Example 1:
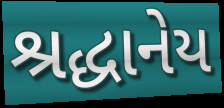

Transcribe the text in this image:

શ્રદ્ધાનેય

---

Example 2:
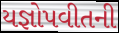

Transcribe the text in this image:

યજ્ઞોપવીતની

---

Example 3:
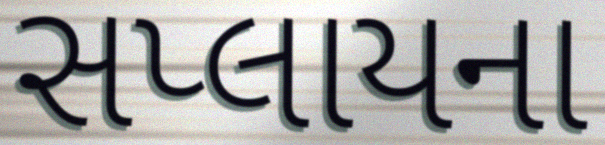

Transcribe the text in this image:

સપ્લાયના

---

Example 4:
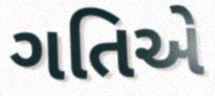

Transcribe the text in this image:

ગતિએ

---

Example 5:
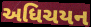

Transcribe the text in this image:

અધિચયન